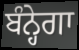
ਬੰਨ੍ਹੇਗਾ